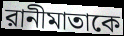
রানীমাতাকে